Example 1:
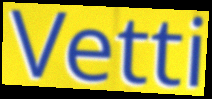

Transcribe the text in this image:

Vetti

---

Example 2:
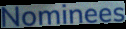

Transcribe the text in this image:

Nominees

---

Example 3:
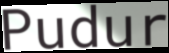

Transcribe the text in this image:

Pudur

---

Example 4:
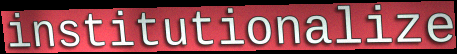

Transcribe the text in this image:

institutionalize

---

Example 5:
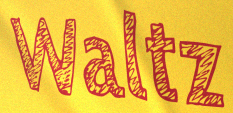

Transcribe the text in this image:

Waltz